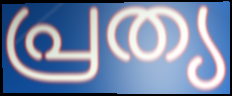
പ്രത്യ